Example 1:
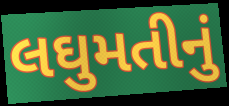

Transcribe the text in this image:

લઘુમતીનું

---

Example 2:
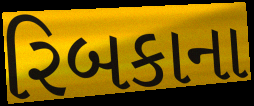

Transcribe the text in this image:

રિબકાના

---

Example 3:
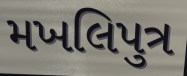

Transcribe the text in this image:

મખલિપુત્ર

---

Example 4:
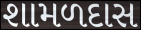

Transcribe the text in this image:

શામળદાસ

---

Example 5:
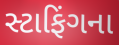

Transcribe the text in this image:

સ્ટાફિંગના